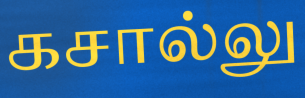
கசால்லு